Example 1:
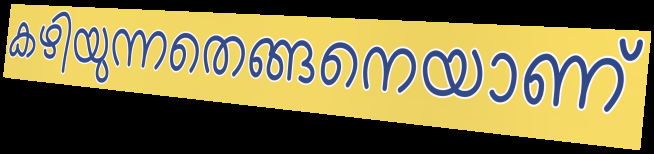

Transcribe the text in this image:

കഴിയുന്നതെങ്ങനെയാണ്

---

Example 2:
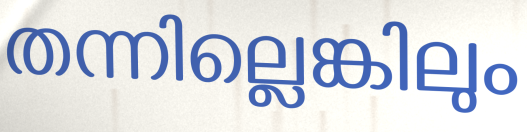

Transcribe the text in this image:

തന്നില്ലെങ്കിലും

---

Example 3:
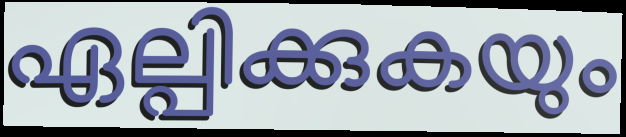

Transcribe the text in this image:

ഏല്പിക്കുകയും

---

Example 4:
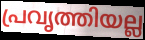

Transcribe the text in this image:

പ്രവൃത്തിയല്ല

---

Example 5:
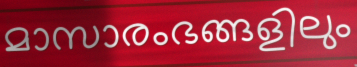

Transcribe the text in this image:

മാസാരംഭങ്ങളിലും